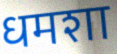
धमशा